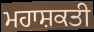
ਮਹਾਸ਼ਕਤੀ